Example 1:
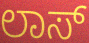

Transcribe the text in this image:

ಲಾಸ್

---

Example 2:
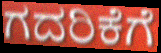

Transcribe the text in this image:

ಗದರಿಕೆಗೆ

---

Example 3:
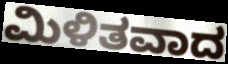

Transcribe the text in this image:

ಮಿಳಿತವಾದ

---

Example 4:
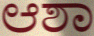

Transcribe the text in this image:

ಆಶಾ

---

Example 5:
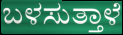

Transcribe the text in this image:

ಬಳಸುತ್ತಾಳೆ